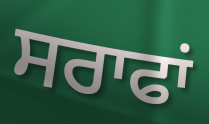
ਸਰਾਫਾਂ